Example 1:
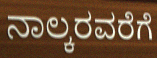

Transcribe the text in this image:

ನಾಲ್ಕರವರೆಗೆ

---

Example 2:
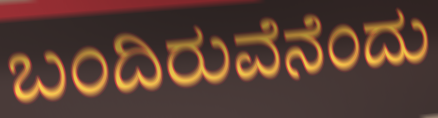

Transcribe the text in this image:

ಬಂದಿರುವೆನೆಂದು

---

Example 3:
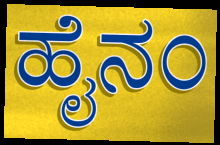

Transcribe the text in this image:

ಹೈನಂ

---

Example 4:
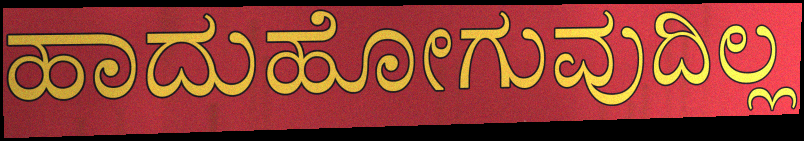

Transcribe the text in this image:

ಹಾದುಹೋಗುವುದಿಲ್ಲ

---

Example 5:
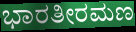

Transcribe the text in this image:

ಭಾರತೀರಮಣ